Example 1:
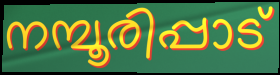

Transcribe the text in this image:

നമ്പൂരിപ്പാട്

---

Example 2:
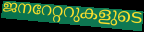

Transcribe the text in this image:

ജനറേറ്ററുകളുടെ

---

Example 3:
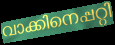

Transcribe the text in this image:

വാക്കിനെപ്പറ്റി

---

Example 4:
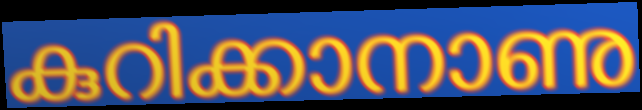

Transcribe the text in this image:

കുറിക്കാനാണു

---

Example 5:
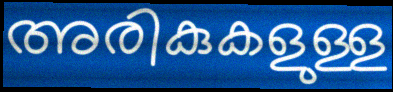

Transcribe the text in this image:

അരികുകളുള്ള